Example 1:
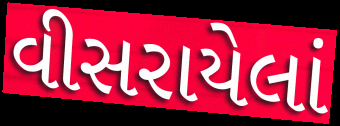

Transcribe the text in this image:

વીસરાયેલાં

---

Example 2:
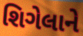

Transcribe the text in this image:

શિગેલાને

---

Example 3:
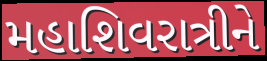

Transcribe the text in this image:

મહાશિવરાત્રીને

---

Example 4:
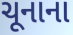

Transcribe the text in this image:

ચૂનાના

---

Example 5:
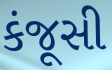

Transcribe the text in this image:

કંજૂસી